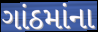
ગાંઠમાંના